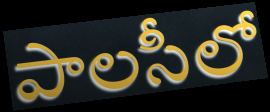
పాలసీలో